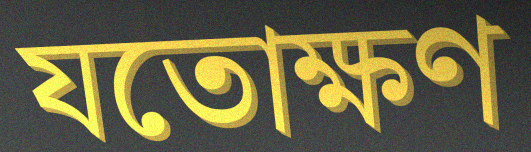
যতোক্ষণ